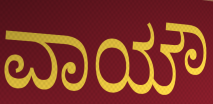
ವಾಯೌ